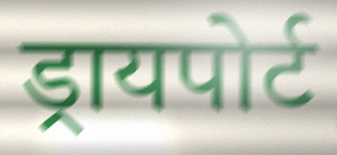
ड्रायपोर्ट